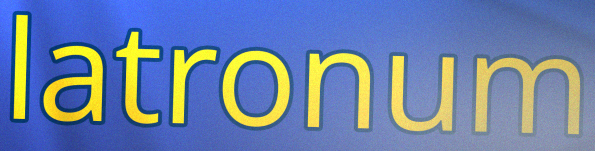
latronum